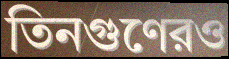
তিনগুণেরও